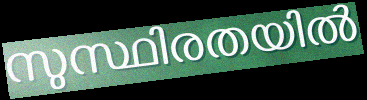
സുസ്ഥിരതയിൽ